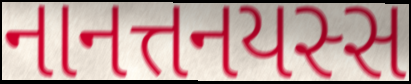
નાનત્તનયસ્સ